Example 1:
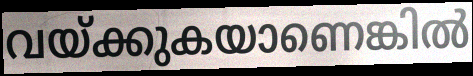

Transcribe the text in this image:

വയ്ക്കുകയാണെങ്കിൽ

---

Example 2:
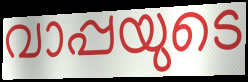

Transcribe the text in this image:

വാപ്പയുടെ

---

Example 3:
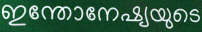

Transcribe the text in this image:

ഇന്തോനേഷ്യയുടെ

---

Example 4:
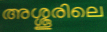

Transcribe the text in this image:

അശ്ശൂരിലെ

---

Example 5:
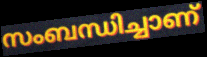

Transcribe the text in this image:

സംബന്ധിച്ചാണ്